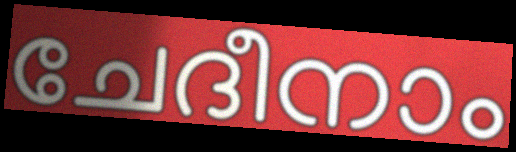
ചേദീനാം